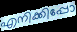
എനിക്കിപ്പോ